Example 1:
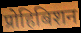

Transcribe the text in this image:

प्रोहिबिशन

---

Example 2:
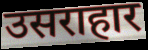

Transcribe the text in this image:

उसराहार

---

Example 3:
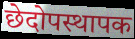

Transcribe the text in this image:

छेदोपस्थापक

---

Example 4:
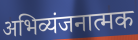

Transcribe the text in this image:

अभिव्यंजनात्मक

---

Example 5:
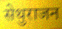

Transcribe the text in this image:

सेथुराजन